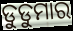
ଡୁଡୁମାର